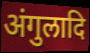
अंगुलादि